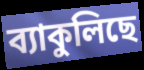
ব্যাকুলিছে